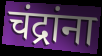
चंद्रांना